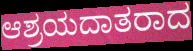
ಆಶ್ರಯದಾತರಾದ